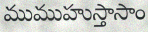
ముముహుస్తాసాం